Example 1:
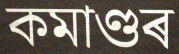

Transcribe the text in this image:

কমাণ্ডৰ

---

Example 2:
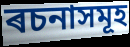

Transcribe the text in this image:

ৰচনাসমূহ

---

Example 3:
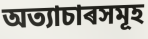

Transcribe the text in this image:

অত্যাচাৰসমূহ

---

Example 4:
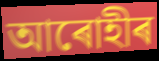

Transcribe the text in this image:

আৰোহীৰ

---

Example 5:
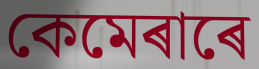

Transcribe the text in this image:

কেমেৰাৰে